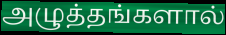
அழுத்தங்களால்